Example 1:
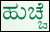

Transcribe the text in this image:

ಹುಚ್ಚೆ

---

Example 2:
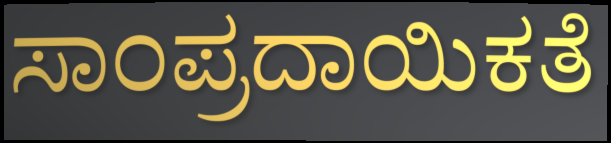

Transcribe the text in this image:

ಸಾಂಪ್ರದಾಯಿಕತೆ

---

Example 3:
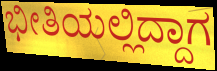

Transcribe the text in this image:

ಭೀತಿಯಲ್ಲಿದ್ದಾಗ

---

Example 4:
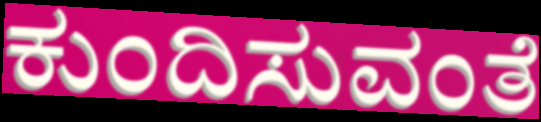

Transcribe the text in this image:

ಕುಂದಿಸುವಂತೆ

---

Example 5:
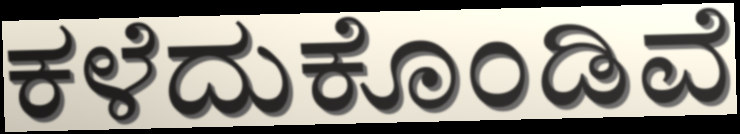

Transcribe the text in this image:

ಕಳೆದುಕೊಂಡಿವೆ